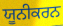
ਯੂਨੀਕਰਨ